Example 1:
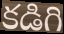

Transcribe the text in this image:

కడిగి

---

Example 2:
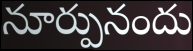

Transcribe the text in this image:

నూర్పునందు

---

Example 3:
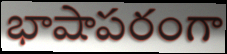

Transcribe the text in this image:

భాషాపరంగా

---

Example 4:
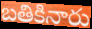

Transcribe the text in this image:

బతికినారు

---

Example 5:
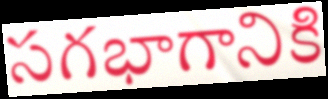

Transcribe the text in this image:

సగభాగానికి